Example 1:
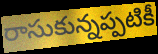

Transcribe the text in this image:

రాసుకున్నప్పటికీ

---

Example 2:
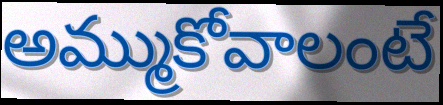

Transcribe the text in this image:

అమ్ముకోవాలంటే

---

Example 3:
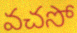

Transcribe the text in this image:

వచసో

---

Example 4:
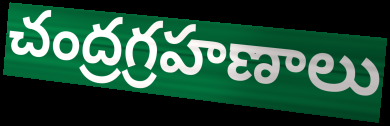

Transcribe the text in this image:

చంద్రగ్రహణాలు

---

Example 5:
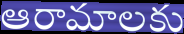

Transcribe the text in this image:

ఆరామాలకు